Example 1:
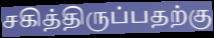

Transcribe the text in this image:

சகித்திருப்பதற்கு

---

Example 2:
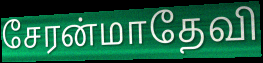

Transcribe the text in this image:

சேரன்மாதேவி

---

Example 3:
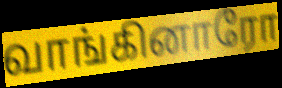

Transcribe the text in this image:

வாங்கினாரோ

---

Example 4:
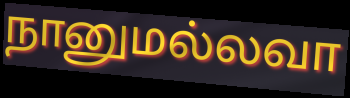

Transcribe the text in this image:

நானுமல்லவா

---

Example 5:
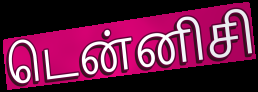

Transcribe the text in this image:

டென்னிசி